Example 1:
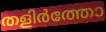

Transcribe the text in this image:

തളിർത്തോ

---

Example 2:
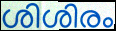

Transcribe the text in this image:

ശിശിരം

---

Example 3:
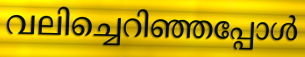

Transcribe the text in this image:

വലിച്ചെറിഞ്ഞപ്പോൾ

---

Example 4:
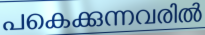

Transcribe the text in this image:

പകെക്കുന്നവരിൽ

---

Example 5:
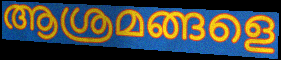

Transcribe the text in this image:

ആശ്രമങ്ങളെ